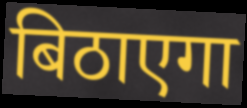
बिठाएगा